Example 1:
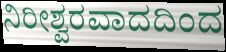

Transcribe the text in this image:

ನಿರೀಶ್ವರವಾದದಿಂದ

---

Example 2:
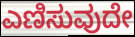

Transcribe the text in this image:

ಎಣಿಸುವುದೇ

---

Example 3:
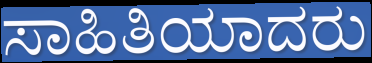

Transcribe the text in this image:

ಸಾಹಿತಿಯಾದರು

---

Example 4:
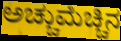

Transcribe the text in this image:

ಅಚ್ಚುಮೆಚ್ಚಿನ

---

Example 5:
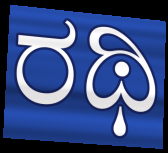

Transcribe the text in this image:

ರಥಿ